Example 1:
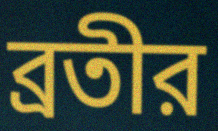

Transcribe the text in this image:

ব্রতীর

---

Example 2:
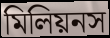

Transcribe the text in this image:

মিলিয়নস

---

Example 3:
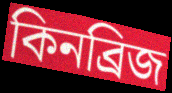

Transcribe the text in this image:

কিনব্রিজ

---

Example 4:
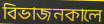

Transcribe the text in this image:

বিভাজনকালে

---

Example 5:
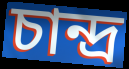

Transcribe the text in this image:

চান্দ্র